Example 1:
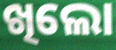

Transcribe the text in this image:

ଖିଲୋ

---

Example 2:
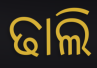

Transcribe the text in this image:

ଢାଲି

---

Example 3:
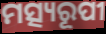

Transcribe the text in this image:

ମତ୍ସ୍ୟରୂପୀ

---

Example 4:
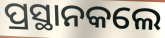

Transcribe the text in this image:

ପ୍ରସ୍ଥାନକଲେ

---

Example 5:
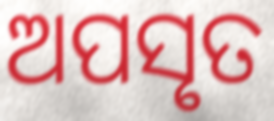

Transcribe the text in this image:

ଅପସୃତ